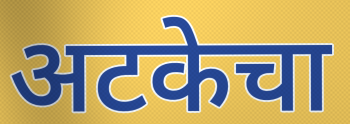
अटकेचा